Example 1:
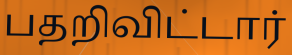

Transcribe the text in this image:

பதறிவிட்டார்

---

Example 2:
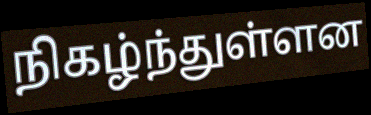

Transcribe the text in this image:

நிகழ்ந்துள்ளன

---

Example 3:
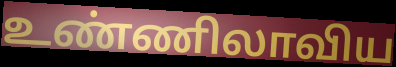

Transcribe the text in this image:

உண்ணிலாவிய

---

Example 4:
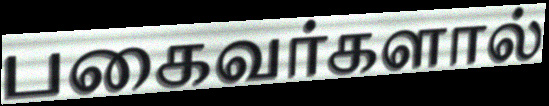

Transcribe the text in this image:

பகைவர்களால்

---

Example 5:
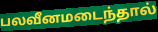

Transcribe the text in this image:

பலவீனமடைந்தால்